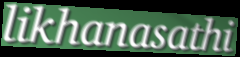
likhanasathi